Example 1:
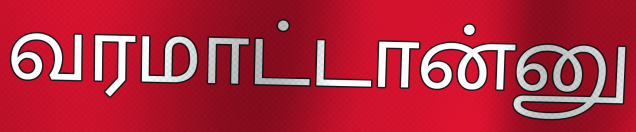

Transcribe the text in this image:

வரமாட்டான்னு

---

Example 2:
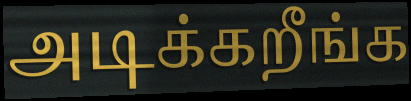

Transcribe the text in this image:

அடிக்கறீங்க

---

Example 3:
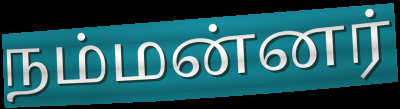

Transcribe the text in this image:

நம்மன்னர்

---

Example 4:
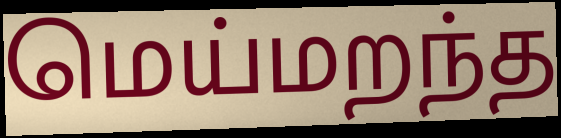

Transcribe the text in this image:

மெய்மறந்த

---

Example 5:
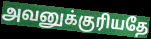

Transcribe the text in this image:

அவனுக்குரியதே